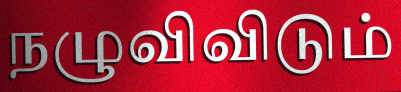
நழுவிவிடும்